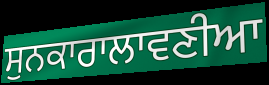
ਸੁਨਕਾਰਾਲਾਵਣੀਆ